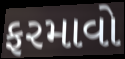
ફરમાવો